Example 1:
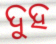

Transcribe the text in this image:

ଦୁହ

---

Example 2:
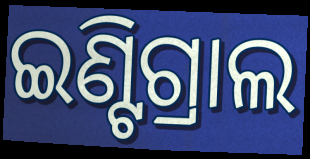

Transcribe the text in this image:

ଇଣ୍ଟିଗ୍ରାଲ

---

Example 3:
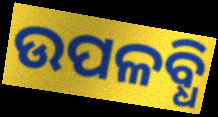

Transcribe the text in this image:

ଉପଳବ୍ଧି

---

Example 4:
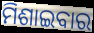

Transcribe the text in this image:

ମିଶାଇବାର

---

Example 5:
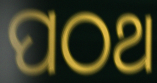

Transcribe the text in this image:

ପଠଥ